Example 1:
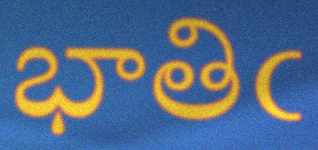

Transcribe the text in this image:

భాతిఁ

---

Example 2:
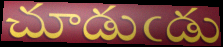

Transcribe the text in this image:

చూడుఁడు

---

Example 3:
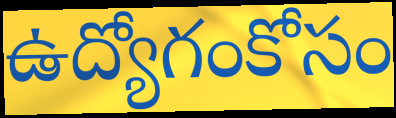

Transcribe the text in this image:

ఉద్యోగంకోసం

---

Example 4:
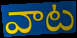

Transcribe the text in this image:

వాట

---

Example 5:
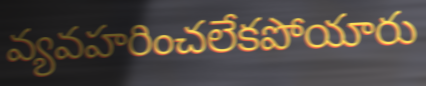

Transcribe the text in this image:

వ్యవహరించలేకపోయారు